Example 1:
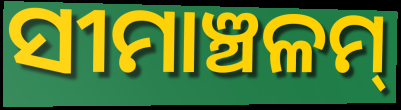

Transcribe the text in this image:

ସୀମାଞ୍ଚଳମ୍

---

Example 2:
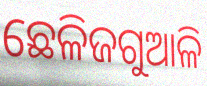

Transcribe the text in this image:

ଛେଳିଜଗୁଆଳି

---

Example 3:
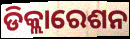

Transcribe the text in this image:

ଡିକ୍ଲାରେଶନ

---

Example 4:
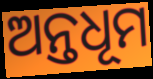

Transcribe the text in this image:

ଅନ୍ତଧୂମ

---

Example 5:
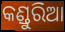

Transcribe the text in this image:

କଣ୍ଡୁରିଆ